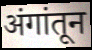
अंगांतून